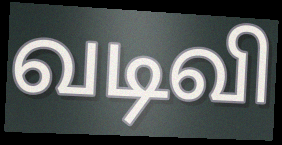
வடிவி